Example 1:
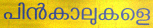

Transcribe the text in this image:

പിൻകാലുകളെ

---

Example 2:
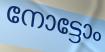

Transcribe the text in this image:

നോട്ടോം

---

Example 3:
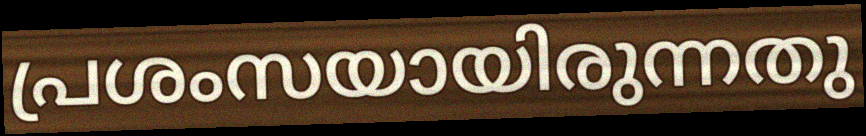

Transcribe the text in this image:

പ്രശംസയായിരുന്നതു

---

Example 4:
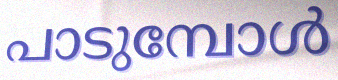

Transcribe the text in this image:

പാടുമ്പോൾ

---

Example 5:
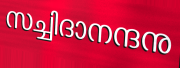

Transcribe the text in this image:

സച്ചിദാനന്ദനു